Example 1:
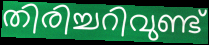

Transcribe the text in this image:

തിരിച്ചറിവുണ്ട്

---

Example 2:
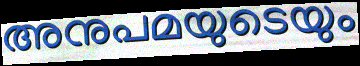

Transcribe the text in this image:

അനുപമയുടെയും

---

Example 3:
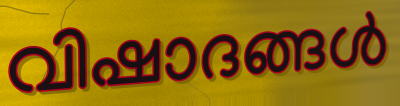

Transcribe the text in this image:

വിഷാദങ്ങൾ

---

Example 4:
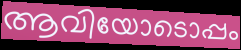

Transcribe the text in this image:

ആവിയോടൊപ്പം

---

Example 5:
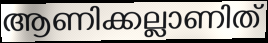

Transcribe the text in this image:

ആണിക്കല്ലാണിത്